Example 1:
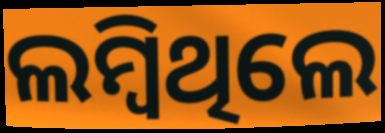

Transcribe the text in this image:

ଲମ୍ବିଥିଲେ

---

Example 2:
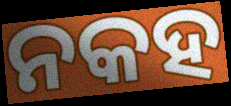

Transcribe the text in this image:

ନକହ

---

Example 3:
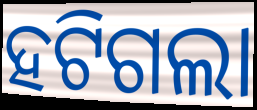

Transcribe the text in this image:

ହଟିଗଲା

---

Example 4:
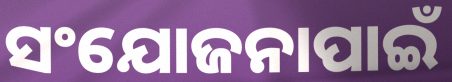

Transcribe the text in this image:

ସଂଯୋଜନାପାଇଁ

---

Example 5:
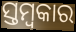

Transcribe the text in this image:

ସ୍ତମ୍ବକାର